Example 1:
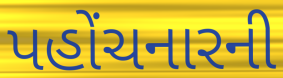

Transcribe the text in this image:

પહોંચનારની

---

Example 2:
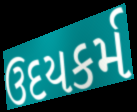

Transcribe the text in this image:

ઉદયકર્મ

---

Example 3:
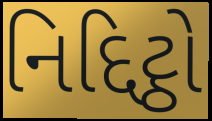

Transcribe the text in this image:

નિદ્દિટ્ઠો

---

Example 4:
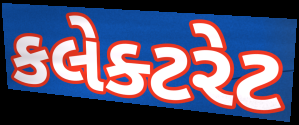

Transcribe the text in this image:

કલેક્ટરેટ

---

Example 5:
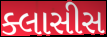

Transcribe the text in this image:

ક્લાસીસ